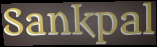
Sankpal